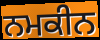
ਨਮਕੀਨ